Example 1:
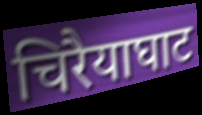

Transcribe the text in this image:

चिरैयाघाट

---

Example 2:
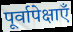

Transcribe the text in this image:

पूर्वापेक्षाएँ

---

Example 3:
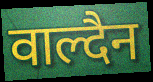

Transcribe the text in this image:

वाल्दैन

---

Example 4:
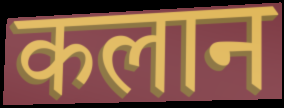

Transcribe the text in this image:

कलान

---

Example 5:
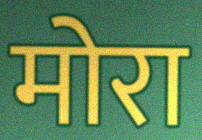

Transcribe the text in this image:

मोरा